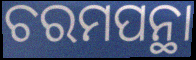
ଚରମପନ୍ଥା